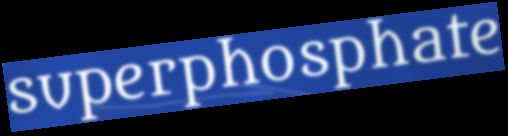
superphosphate